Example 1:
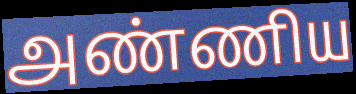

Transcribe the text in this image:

அண்ணிய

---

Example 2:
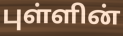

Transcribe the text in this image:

புள்ளின்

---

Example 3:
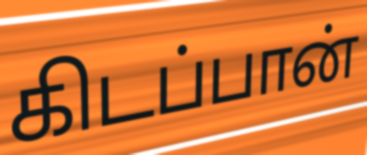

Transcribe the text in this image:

கிடப்பான்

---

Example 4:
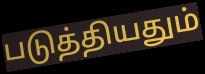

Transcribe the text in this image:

படுத்தியதும்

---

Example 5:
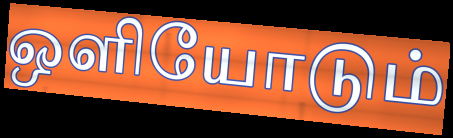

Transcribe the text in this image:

ஒளியோடும்